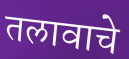
तलावाचे